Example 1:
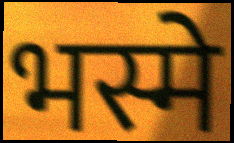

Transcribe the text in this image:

भस्मे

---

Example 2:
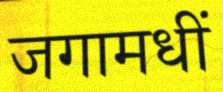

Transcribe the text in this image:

जगामधीं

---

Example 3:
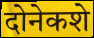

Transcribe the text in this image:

दोनेकशे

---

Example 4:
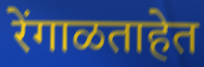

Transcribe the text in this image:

रेंगाळताहेत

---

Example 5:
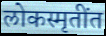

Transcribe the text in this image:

लोकस्मृतींत